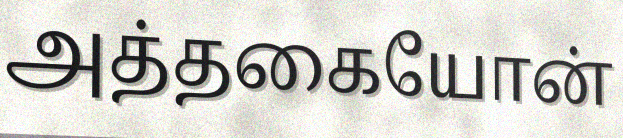
அத்தகையோன்